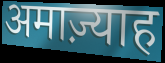
अमाज़्याह